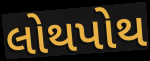
લોથપોથ